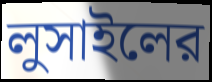
লুসাইলের